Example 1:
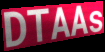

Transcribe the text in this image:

DTAAs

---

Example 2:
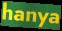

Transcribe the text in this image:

hanya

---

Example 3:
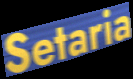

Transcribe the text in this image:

Setaria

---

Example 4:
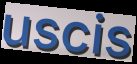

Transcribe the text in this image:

uscis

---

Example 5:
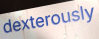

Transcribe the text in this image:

dexterously